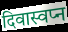
दिवास्‍वप्‍न